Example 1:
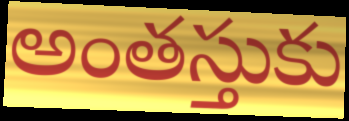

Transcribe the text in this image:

అంతస్తుకు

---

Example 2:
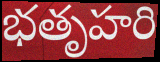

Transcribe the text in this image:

భతృహరి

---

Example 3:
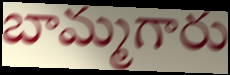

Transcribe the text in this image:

బామ్మగారు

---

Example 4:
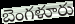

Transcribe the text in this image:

బెంగళూరు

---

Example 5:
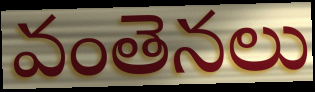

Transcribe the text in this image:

వంతెనలు